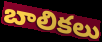
బాలికలు